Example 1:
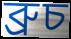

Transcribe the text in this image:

ব্ৰুচ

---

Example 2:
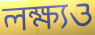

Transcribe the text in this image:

লক্ষ্যও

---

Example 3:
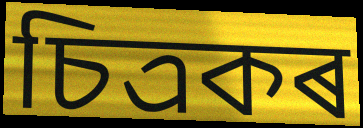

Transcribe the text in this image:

চিত্ৰকৰ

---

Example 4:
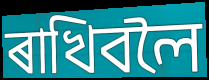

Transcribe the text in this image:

ৰাখিবলৈ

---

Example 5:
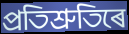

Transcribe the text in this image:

প্ৰতিশ্ৰুতিৰে